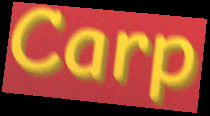
Carp